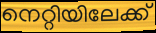
നെറ്റിയിലേക്ക്